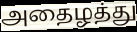
அதைழத்து